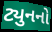
ટ્યુનનો